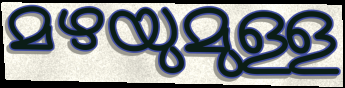
മഴയുമുള്ള